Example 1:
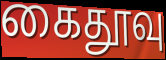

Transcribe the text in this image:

கைதூவு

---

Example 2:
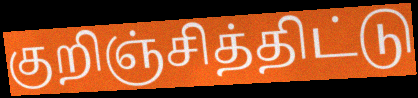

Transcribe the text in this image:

குறிஞ்சித்திட்டு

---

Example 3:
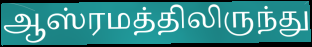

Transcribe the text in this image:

ஆஸ்ரமத்திலிருந்து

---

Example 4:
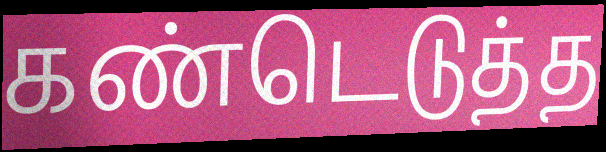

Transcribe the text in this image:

கண்டெடுத்த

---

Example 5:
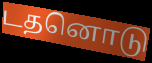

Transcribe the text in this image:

டதனொடு